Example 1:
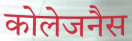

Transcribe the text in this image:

कोलेजनैस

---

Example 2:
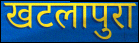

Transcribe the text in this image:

खटलापुरा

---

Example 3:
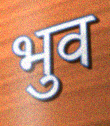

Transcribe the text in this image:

भुव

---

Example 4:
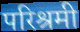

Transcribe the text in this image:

परिश्रमी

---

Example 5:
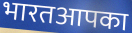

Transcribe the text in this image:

भारतआपका